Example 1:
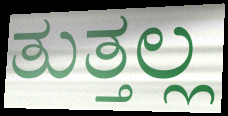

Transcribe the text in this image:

ತುತ್ತಲ್ಲ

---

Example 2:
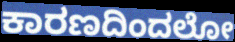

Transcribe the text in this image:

ಕಾರಣದಿಂದಲೋ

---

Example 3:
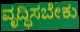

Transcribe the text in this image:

ವೃದ್ಧಿಸಬೇಕು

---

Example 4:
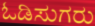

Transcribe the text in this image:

ಓಡಿಸುಗರು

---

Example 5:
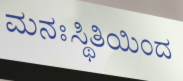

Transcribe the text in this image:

ಮನಃಸ್ಥಿತಿಯಿಂದ